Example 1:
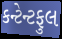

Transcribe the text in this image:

કન્ટેન્ટફુલ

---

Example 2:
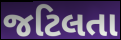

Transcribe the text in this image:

જટિલતા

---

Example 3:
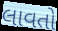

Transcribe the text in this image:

લાવતો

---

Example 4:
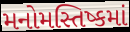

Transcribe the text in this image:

મનોમસ્તિષ્કમાં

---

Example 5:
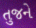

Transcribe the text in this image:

તુજને